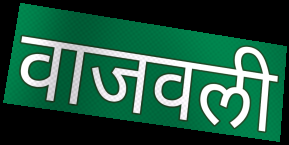
वाजवली